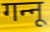
गन्नू